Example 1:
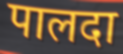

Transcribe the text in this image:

पालदा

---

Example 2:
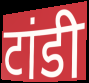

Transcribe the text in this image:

टांडी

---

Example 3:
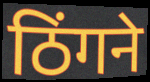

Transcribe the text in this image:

ठिंगने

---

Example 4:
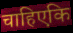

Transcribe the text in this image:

चाहिएकि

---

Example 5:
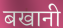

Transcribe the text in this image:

बखानी